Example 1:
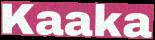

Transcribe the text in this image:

Kaaka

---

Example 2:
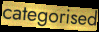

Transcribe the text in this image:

categorised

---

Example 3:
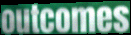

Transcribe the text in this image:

outcomes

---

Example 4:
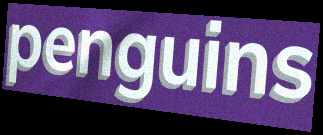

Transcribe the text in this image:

penguins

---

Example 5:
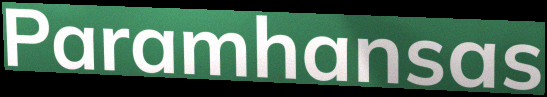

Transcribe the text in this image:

Paramhansas